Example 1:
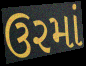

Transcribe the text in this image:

ઉરમાં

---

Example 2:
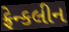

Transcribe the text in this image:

ફ્રેન્કલીન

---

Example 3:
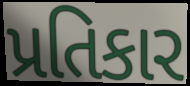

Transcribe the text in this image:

પ્રતિકાર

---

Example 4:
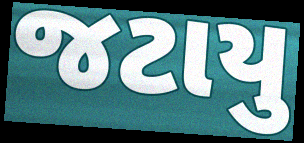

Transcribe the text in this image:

જટાયુ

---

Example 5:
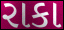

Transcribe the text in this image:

રાકા